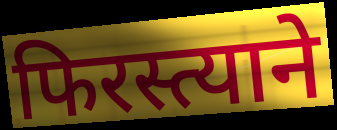
फिरस्त्याने